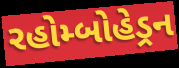
રહોમ્બોહેડ્રન